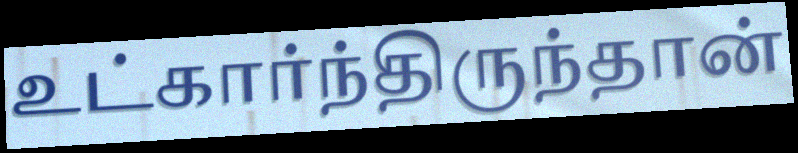
உட்கார்ந்திருந்தான்